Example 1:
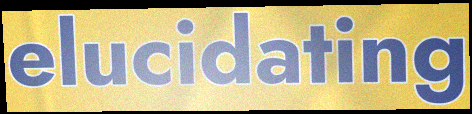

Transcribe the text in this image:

elucidating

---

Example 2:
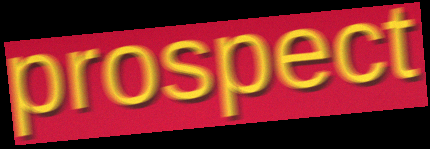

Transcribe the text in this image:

prospect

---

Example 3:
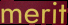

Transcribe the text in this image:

merit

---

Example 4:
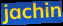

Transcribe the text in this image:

jachin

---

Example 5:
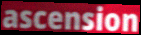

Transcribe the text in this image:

ascension